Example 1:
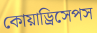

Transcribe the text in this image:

কোয়াড্রিসেপস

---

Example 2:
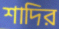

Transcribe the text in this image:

শাদির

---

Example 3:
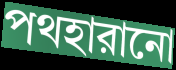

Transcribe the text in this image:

পথহারানো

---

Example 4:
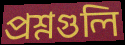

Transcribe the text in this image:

প্রশ্নগুলি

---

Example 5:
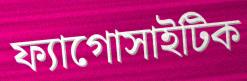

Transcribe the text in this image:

ফ্যাগোসাইটিক